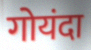
गोयंदा